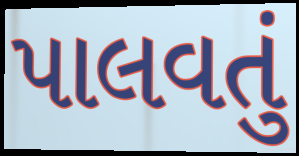
પાલવતું